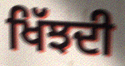
ਖਿੱਝਦੀ